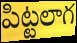
పిట్టలాగ